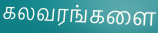
கலவரங்களை